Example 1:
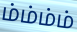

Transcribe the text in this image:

ம்ம்ம்ம்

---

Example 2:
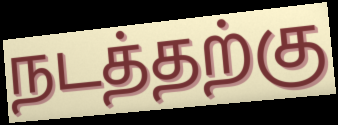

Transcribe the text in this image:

நடத்தற்கு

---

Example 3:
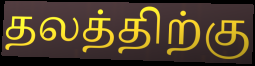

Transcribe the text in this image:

தலத்திற்கு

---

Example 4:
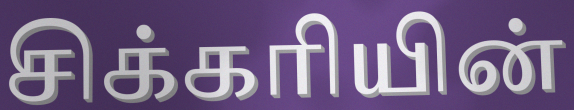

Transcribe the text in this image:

சிக்கரியின்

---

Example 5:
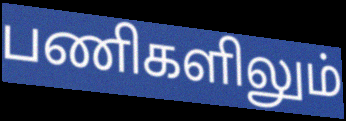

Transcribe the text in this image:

பணிகளிலும்